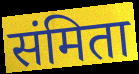
संमिता